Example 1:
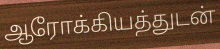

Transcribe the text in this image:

ஆரோக்கியத்துடன்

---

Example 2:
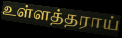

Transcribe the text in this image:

உள்ளத்தராய்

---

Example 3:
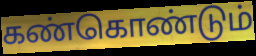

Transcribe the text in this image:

கண்கொண்டும்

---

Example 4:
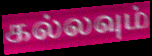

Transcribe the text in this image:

கல்லவும்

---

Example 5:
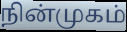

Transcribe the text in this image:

நின்முகம்